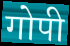
गोपी